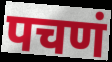
पचणं